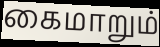
கைமாறும்